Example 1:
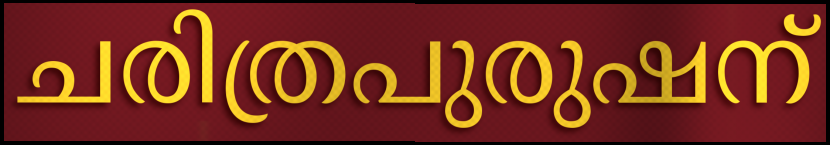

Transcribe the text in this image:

ചരിത്രപുരുഷന്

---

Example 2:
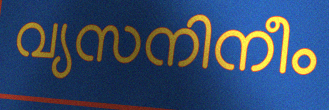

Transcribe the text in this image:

വ്യസനിനീം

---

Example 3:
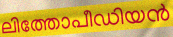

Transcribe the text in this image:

ലിത്തോപീഡിയൻ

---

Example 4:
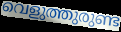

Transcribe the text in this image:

വെളുത്തുരുണ്ട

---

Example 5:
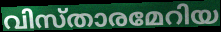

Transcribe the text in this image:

വിസ്താരമേറിയ